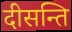
दीसन्ति